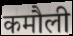
कमौली